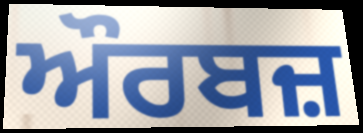
ਔਰਬਜ਼